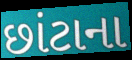
છાંટાના